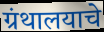
ग्रंथालयाचे